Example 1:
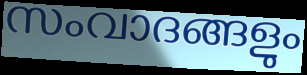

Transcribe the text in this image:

സംവാദങ്ങളും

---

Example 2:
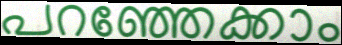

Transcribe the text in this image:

പറഞ്ഞേക്കാം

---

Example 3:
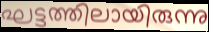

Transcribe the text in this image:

ഘട്ടത്തിലായിരുന്നു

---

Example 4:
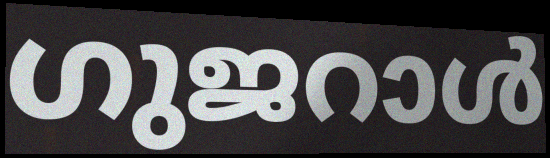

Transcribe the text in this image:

ഗുജറാൾ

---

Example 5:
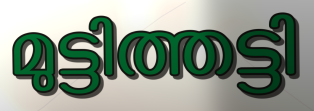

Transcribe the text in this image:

മുട്ടിത്തട്ടി